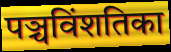
पञ्चविंशतिका